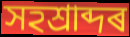
সহশ্ৰাব্দৰ